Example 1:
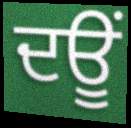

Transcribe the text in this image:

ਦਊਂ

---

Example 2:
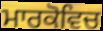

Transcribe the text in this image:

ਮਾਰਕੋਵਿਚ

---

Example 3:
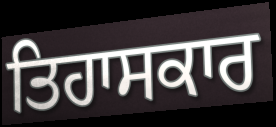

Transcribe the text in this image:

ਤਿਹਾਸਕਾਰ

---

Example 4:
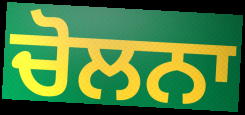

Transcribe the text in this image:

ਚੋਲਨਾ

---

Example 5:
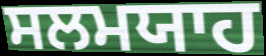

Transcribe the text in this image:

ਸਲਮਯਾਹ